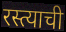
रस्त्याची